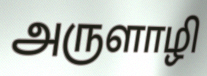
அருளாழி